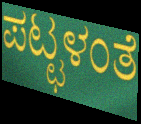
ಪಟ್ಟಳಂತೆ